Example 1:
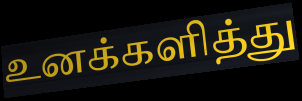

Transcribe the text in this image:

உனக்களித்து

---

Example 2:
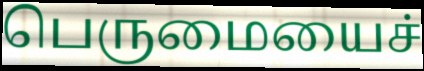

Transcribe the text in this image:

பெருமையைச்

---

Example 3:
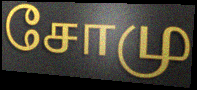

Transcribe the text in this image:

சோமு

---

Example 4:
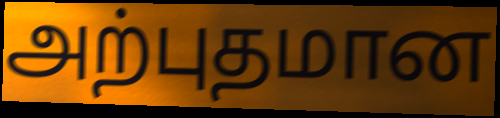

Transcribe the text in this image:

அற்புதமான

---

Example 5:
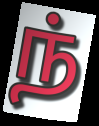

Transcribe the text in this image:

ந்